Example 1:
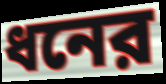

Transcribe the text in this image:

ধনের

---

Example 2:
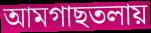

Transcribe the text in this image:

আমগাছতলায়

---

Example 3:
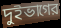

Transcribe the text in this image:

দুইভাগের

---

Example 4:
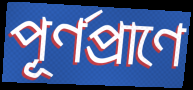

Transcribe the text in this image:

পূর্ণপ্রাণে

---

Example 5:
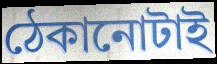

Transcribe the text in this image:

ঠেকানোটাই